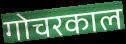
गोचरकाल